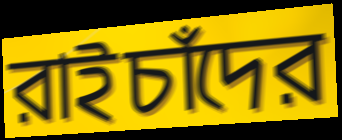
রাইচাঁদের